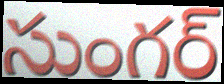
సుంగర్